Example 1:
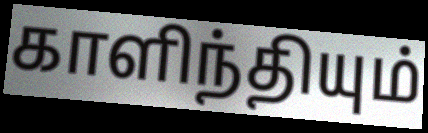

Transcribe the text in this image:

காளிந்தியும்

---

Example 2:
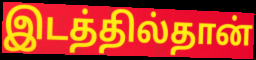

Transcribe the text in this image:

இடத்தில்தான்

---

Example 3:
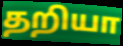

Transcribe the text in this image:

தறியா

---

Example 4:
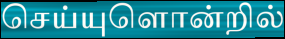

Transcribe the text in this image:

செய்யுளொன்றில்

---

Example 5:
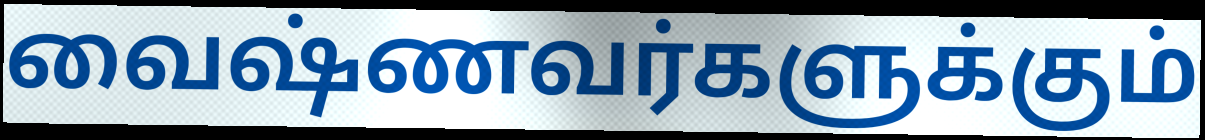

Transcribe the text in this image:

வைஷ்ணவர்களுக்கும்